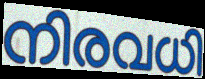
നിരവധി